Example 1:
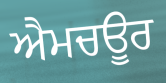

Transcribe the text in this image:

ਐਮਚਊਰ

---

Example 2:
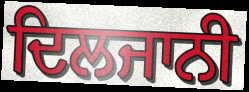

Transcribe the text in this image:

ਦਿਲਜਾਨੀ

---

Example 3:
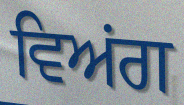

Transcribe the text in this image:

ਵਿਅਂਗ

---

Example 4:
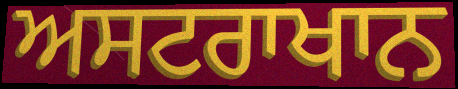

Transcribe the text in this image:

ਅਸਟਰਾਖਾਨ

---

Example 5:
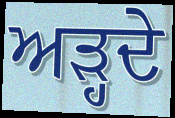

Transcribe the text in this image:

ਅੜ੍ਹਦੇ